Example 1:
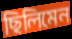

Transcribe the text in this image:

ছিলিমেন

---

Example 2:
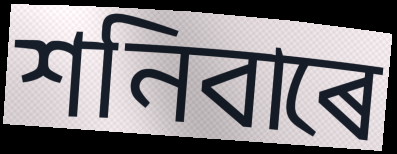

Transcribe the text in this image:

শনিবাৰে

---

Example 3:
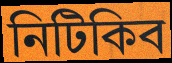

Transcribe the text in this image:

নিটিকিব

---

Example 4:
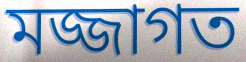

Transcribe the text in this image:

মজ্জাগত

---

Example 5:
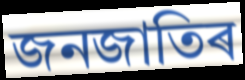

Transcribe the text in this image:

জনজাতিৰ